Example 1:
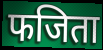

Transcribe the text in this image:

फजिता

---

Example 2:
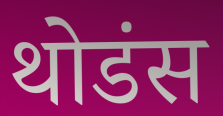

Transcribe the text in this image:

थोडंस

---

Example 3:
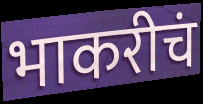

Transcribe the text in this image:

भाकरीचं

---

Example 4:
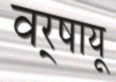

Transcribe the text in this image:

वर्षायू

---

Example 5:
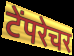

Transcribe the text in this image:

टेंपरेचर